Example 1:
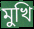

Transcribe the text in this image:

মুখি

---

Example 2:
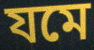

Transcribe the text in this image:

যমে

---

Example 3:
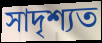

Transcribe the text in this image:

সাদৃশ্যত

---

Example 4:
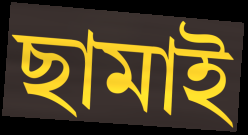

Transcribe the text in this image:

ছামাই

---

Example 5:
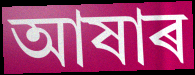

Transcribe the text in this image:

আষাৰ